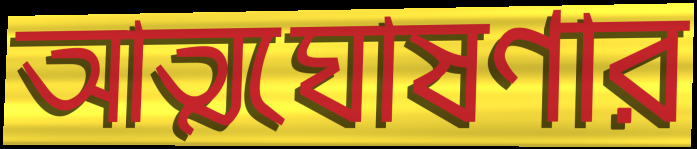
আত্মঘোষণার